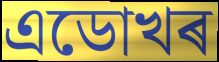
এডোখৰ